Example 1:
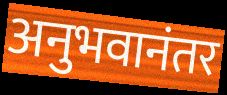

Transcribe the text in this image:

अनुभवानंतर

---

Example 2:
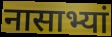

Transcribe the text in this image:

नासाभ्यां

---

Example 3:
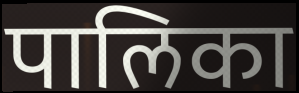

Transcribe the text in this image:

पालिका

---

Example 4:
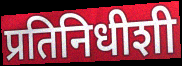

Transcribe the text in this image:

प्रतिनिधीशी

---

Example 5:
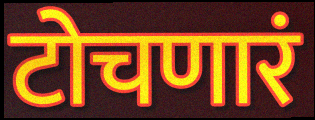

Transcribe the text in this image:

टोचणारं